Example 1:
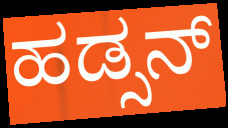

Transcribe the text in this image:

ಹಡ್ಸನ್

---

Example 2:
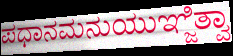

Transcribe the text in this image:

ಪಧಾನಮನುಯುಞ್ಜಿತ್ವಾ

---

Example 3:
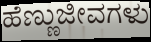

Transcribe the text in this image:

ಹೆಣ್ಣುಜೀವಗಳು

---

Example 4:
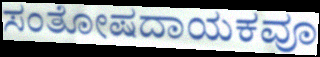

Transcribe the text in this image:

ಸಂತೋಷದಾಯಕವೂ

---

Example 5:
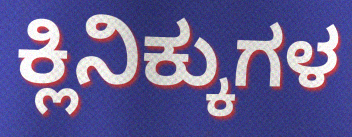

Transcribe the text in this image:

ಕ್ಲಿನಿಕ್ಕುಗಳ